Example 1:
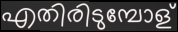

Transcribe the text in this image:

എതിരിടുമ്പോള്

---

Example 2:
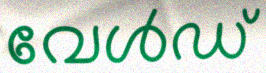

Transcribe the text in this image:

വേൾഡ്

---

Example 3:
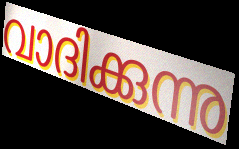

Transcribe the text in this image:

വാദിക്കുന്നു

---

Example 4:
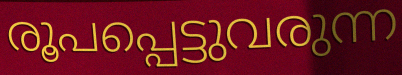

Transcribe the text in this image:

രൂപപ്പെട്ടുവരുന്ന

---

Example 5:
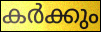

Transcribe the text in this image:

കർക്കും